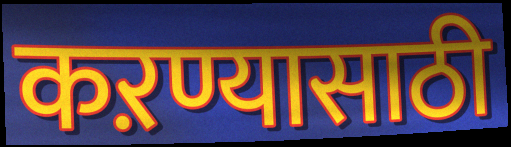
कऱण्यासाठी